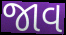
જાવ